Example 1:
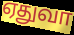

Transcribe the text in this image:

ஏதுவா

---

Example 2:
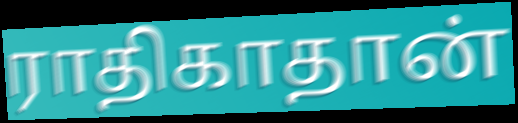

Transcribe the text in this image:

ராதிகாதான்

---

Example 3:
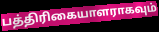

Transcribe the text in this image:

பத்திரிகையாளராகவும்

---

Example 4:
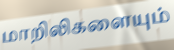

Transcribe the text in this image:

மாறிலிகளையும்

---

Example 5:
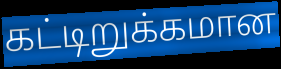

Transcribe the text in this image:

கட்டிறுக்கமான